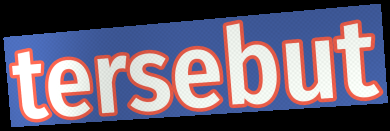
tersebut